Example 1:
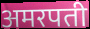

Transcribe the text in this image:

अमरपती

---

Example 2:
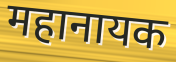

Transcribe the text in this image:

महानायक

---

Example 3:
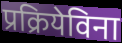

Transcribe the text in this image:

प्रक्रियेविना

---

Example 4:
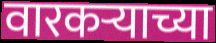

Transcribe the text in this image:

वारकऱ्याच्या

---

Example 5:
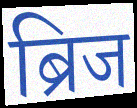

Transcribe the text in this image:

ब्रिज